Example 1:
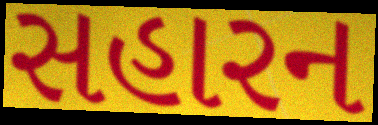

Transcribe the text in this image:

સહારન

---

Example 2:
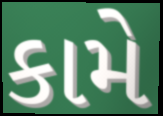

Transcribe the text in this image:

કામે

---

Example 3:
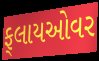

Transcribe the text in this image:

ફ્‌લાયઓવર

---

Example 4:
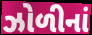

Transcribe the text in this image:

ઝોળીનાં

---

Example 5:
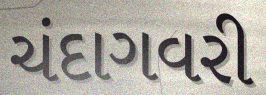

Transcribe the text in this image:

ચંદાગવરી